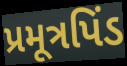
પ્રમૂત્રપિંડ